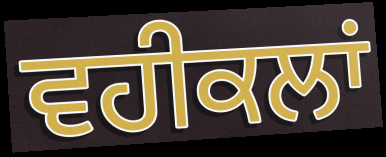
ਵਹੀਕਲਾਂ